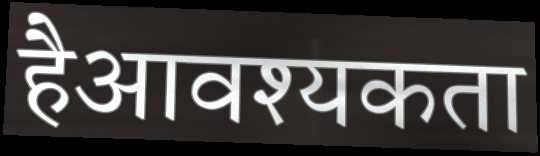
हैआवश्यकता